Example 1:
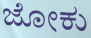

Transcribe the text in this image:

ಜೋಕು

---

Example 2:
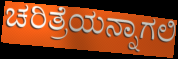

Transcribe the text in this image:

ಚರಿತ್ರೆಯನ್ನಾಗಲಿ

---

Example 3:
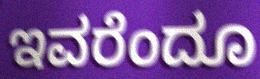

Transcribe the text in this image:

ಇವರೆಂದೂ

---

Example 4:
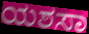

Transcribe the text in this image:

ಯಶಸಾ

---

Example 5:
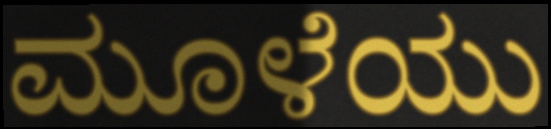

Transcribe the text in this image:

ಮೂಳೆಯು